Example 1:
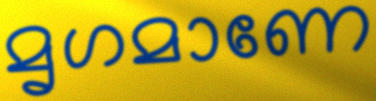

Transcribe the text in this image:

മൃഗമാണേ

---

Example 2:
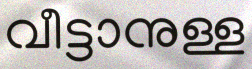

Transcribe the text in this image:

വീട്ടാനുള്ള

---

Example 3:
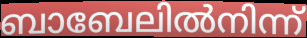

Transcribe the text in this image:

ബാബേലിൽനിന്ന്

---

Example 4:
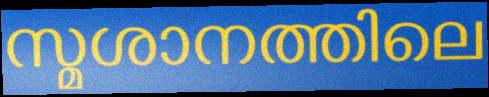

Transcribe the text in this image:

സ്മശാനത്തിലെ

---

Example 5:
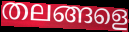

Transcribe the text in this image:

തലങ്ങളെ